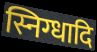
स्निग्धादि